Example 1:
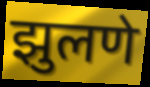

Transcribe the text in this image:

झुलणे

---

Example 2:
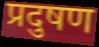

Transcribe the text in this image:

प्रदुषण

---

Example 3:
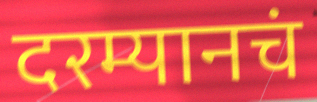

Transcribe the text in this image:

दरम्यानचं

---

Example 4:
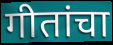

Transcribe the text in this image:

गीतांचा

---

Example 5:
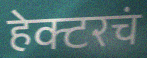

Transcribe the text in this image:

हेक्टरचं